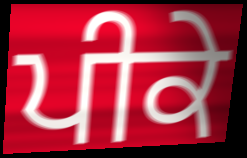
ਪੀਕੇ